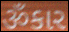
ૐકાર